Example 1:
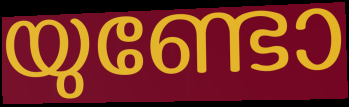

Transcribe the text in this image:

യുണ്ടോ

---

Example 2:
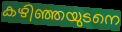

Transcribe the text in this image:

കഴിഞ്ഞയുടനെ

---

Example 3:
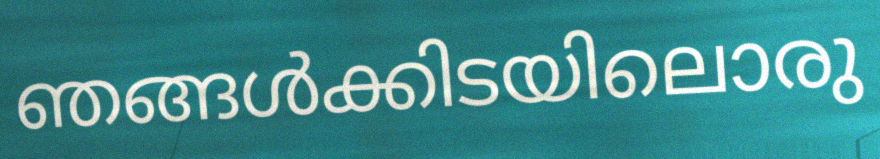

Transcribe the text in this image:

ഞങ്ങൾക്കിടയിലൊരു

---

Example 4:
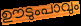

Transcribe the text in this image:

ഊടുംപാവും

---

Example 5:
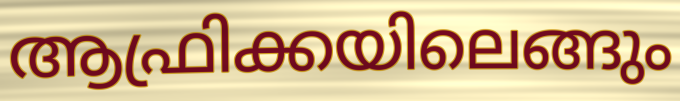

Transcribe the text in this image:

ആഫ്രിക്കയിലെങ്ങും